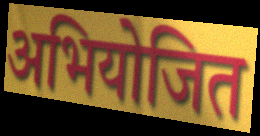
अभियोजित